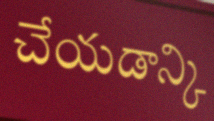
చేయడాన్కి